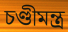
চণ্ডীমন্ত্র